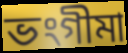
ভংগীমা